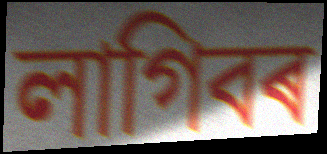
লাগিবৰ